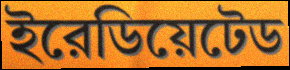
ইরেডিয়েটেড